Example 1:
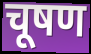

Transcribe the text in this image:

चूषण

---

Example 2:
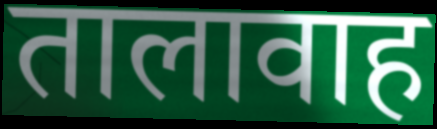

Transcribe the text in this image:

तालावाह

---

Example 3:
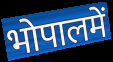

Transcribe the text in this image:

भोपालमें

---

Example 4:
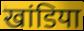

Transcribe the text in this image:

खांडिया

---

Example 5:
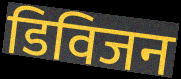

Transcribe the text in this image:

डिविजन